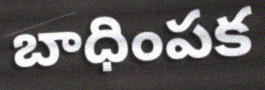
బాధింపక